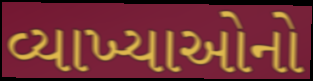
વ્યાખ્યાઓનો